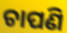
ଚାପଣି